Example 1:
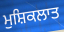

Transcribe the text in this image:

ਮੁਸ਼ਿਕਲਾਤ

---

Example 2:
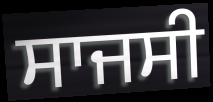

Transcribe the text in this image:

ਸਾਜਸੀ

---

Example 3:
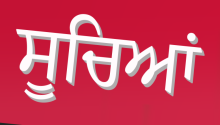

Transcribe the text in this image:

ਸੂਚਿਆਂ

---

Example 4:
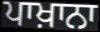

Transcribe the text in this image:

ਪਾਖ਼ਾਨਾ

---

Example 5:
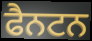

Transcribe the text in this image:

ਫੈਨਟਨ